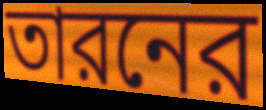
তারনের